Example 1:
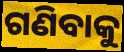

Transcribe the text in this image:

ଗଣିବାକୁ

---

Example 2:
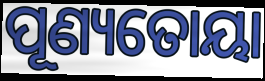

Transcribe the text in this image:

ପୂଣ୍ୟତୋୟା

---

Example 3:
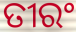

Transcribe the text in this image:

ତୀରଂ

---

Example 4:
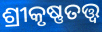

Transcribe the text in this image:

ଶ୍ରୀକୃଷ୍ଣତତ୍ତ୍ଵ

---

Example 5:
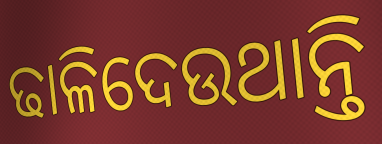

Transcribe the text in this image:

ଢାଳିଦେଉଥାନ୍ତି